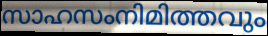
സാഹസംനിമിത്തവും